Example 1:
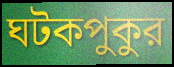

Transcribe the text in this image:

ঘটকপুকুর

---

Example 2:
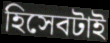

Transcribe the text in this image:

হিসেবটাই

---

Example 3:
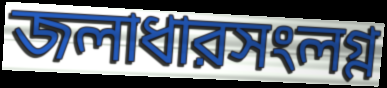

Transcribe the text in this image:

জলাধারসংলগ্ন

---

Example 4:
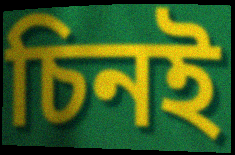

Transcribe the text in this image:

চিনই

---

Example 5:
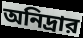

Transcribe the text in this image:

অনিদ্রার